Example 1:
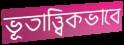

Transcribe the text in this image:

ভূতাত্ত্বিকভাবে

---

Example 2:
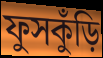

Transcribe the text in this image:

ফুসকুঁড়ি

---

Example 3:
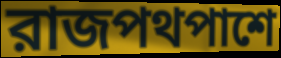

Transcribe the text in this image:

রাজপথপাশে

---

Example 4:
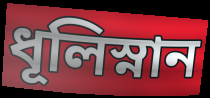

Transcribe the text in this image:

ধূলিস্নান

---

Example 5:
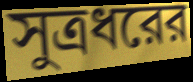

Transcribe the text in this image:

সুত্রধরের